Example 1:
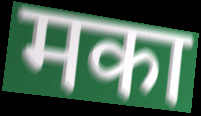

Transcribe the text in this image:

मका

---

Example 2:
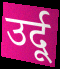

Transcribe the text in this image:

उर्दू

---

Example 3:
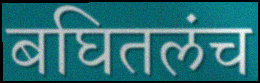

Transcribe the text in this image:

बघितलंच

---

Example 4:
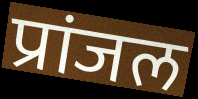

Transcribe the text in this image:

प्रांजल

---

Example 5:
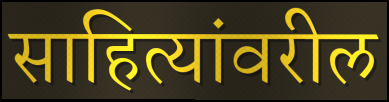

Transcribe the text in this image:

साहित्यांवरील